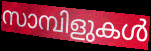
സാമ്പിളുകൾ